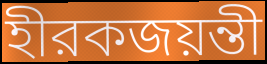
হীরকজয়ন্তী